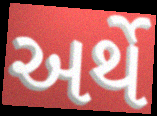
અર્થે